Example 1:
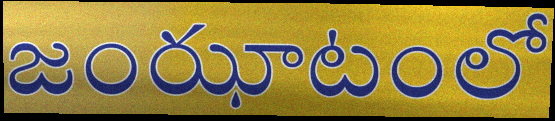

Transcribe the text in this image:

జంఝాటంలో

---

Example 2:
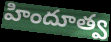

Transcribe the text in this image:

హిందూత్వ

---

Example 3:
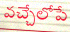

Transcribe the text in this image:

వచ్చేలోపే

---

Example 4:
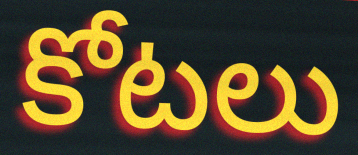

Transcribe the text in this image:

కోటలు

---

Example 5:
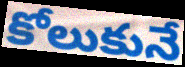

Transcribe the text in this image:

కోలుకునే